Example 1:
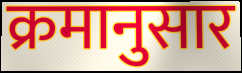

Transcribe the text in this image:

क्रमानुसार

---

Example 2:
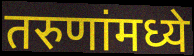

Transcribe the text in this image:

तरुणांमध्ये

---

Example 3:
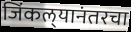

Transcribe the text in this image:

जिंकल्यानंतरचा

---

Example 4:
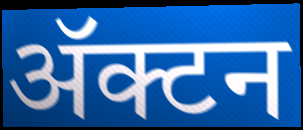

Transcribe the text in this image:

ॲक्टन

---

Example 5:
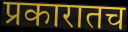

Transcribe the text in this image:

प्रकारातच